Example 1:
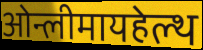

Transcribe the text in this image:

ओन्लीमायहेल्थ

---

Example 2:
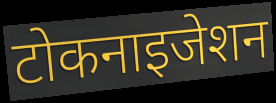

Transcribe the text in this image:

टोकनाइजेशन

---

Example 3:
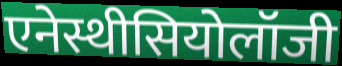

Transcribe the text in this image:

एनेस्थीसियोलॉजी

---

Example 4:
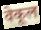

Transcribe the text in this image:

वेकूल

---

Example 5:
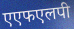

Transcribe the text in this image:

एएफएलपी